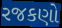
રજકણો